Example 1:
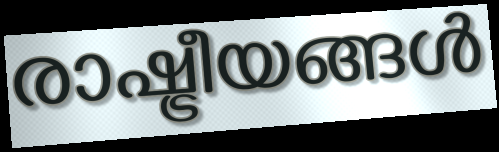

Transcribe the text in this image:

രാഷ്ട്രീയങ്ങൾ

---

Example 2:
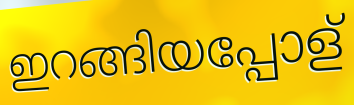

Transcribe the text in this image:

ഇറങ്ങിയപ്പോള്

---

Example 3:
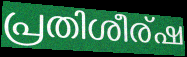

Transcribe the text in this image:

പ്രതിശീര്ഷ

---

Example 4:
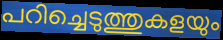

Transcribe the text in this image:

പറിച്ചെടുത്തുകളയും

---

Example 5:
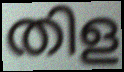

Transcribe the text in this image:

തിള